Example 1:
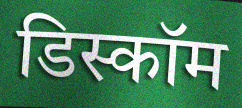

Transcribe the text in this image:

डिस्कॉम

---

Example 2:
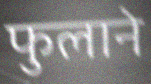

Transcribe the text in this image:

फुलाने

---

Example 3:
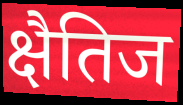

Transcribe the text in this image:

क्षैतिज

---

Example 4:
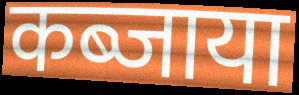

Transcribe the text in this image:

कब्जाया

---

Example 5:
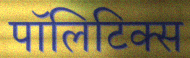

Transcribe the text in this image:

पॉलिटिक्स